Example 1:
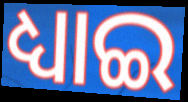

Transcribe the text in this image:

ଧ୍ୟାଇ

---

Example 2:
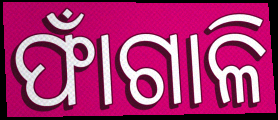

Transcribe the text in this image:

ଫାଁଗାଳି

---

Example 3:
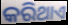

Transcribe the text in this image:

କରିଥାଏ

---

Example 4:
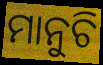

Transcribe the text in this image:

ମାନୁଚି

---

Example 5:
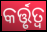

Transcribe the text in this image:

କର୍ତ୍ତୃତ୍ୱ